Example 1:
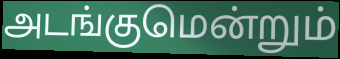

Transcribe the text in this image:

அடங்குமென்றும்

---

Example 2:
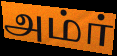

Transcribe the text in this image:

அம்ர்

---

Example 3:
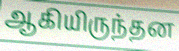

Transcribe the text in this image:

ஆகியிருந்தன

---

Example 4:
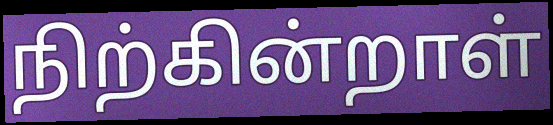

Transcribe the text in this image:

நிற்கின்றாள்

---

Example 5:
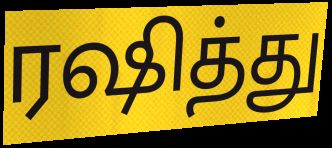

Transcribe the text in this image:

ரஷித்து